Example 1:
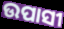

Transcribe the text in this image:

ଉପାସୀ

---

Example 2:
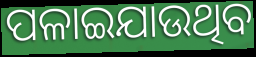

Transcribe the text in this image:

ପଳାଇଯାଉଥିବ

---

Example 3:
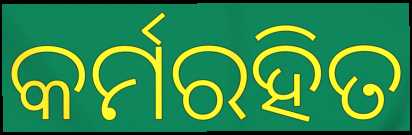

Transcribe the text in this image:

କର୍ମରହିତ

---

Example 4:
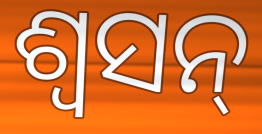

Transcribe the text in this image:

ଶ୍ୱସନ୍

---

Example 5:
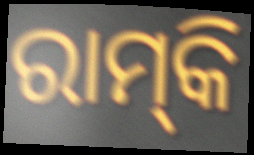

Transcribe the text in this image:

ରାମ୍‌କି